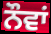
ਨੌਵਾਂ